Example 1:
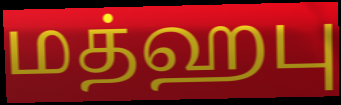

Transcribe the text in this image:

மத்ஹபு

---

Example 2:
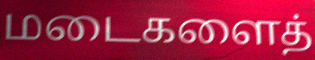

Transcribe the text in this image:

மடைகளைத்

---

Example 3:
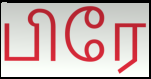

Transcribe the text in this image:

பிரே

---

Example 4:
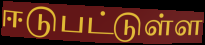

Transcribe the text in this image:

ஈடுபட்டுள்ள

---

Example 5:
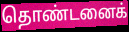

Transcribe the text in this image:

தொண்டனைக்